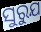
ସୁରୁଯ